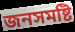
জনসমষ্টি